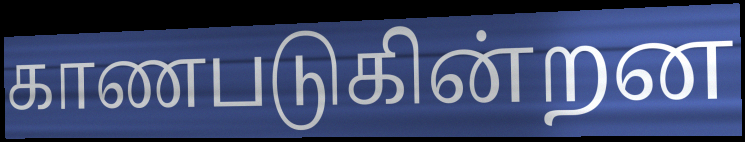
காணபடுகின்றன